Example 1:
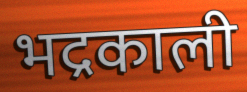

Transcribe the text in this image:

भद्रकाली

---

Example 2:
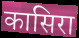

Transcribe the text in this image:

कासिरा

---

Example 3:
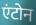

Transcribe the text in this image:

एंटोन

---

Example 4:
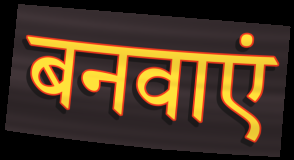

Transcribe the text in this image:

बनवाएं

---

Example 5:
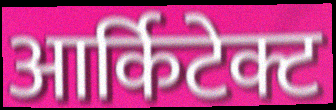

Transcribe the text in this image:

आर्किटेक्ट